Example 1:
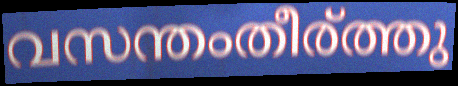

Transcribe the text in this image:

വസന്തംതീര്ത്തു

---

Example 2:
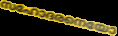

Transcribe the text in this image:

സഹോദരനെയോ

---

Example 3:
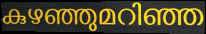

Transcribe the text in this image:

കുഴഞ്ഞുമറിഞ്ഞ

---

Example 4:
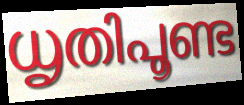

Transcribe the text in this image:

ധൃതിപൂണ്ട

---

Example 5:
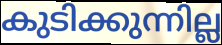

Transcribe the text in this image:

കുടിക്കുന്നില്ല